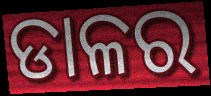
ଡାଳର